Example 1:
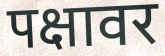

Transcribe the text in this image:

पक्षावर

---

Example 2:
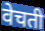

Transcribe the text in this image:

वेचती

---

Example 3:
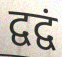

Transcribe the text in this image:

द्वद्वं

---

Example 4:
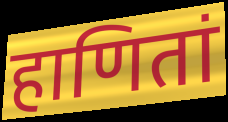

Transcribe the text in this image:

हाणितां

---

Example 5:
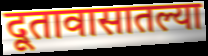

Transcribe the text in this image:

दूतावासातल्या